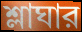
শ্লাঘার